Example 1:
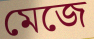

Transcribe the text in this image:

মেজে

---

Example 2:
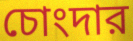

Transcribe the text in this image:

চোংদার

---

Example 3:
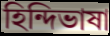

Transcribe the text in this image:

হিন্দিভাষা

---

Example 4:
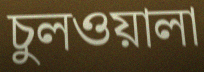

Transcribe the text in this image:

চুলওয়ালা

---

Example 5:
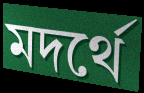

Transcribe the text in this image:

মদর্থে